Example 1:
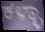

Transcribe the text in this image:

ಕಳ್ಳಾ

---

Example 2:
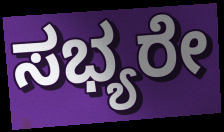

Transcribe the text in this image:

ಸಭ್ಯರೇ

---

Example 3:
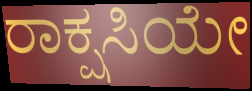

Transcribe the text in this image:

ರಾಕ್ಷಸಿಯೇ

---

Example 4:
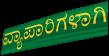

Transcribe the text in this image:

ವ್ಯಾಪಾರಿಗಳಾಗಿ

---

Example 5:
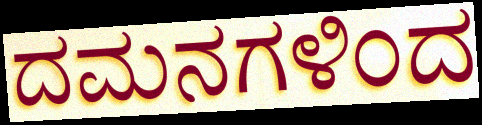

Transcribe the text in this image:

ದಮನಗಳಿಂದ